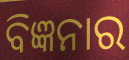
ବିଜ୍ଞନାର